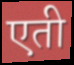
एती